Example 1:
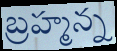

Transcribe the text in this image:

బ్రహ్మన్న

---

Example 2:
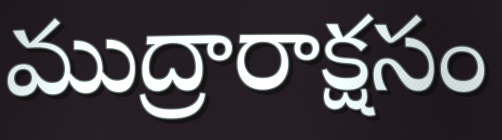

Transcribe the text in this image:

ముద్రారాక్షసం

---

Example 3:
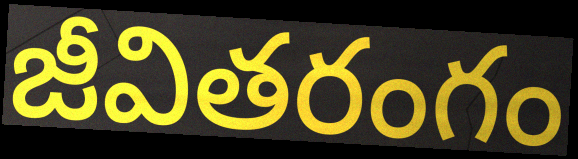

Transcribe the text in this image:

జీవితరంగం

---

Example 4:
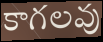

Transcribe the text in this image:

కాగలవు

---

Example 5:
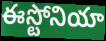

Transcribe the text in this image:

ఈస్టోనియా